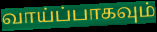
வாய்ப்பாகவும்